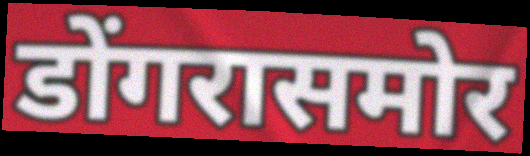
डोंगरासमोर